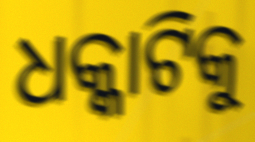
ଧକ୍କାଟିକୁ